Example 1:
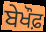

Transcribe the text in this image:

ਬੇਖੌਫ਼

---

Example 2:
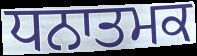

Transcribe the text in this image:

ਧਨਾਤਮਕ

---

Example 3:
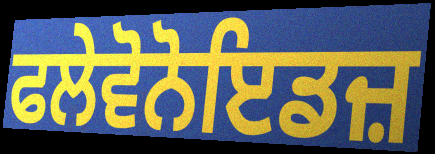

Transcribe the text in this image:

ਫਲੇਵੋਨੋਇਡਜ਼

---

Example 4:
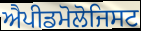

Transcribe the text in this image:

ਐਪੀਡਮੋਲੋਜਿਸਟ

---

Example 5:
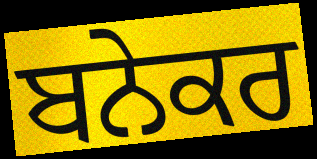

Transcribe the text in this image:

ਬਨੇਕਰ